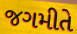
જગમીતે